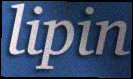
lipin